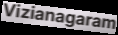
Vizianagaram